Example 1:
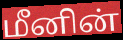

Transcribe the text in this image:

மீனின்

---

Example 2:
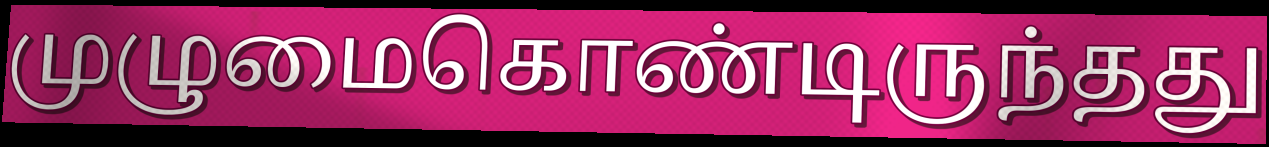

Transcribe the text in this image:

முழுமைகொண்டிருந்தது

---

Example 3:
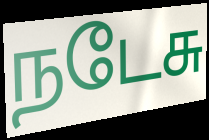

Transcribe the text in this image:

நடேசு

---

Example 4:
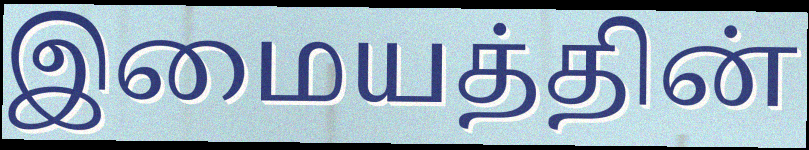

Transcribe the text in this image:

இமையத்தின்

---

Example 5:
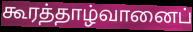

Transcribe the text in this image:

கூரத்தாழ்வானைப்